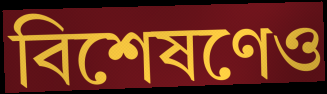
বিশেষণেও